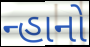
ન્હાનો